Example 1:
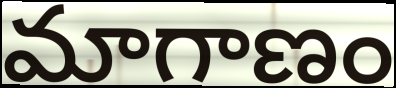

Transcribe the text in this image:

మాగాణం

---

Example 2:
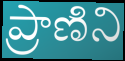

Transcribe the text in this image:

ప్రాణిని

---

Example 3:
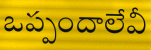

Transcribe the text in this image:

ఒప్పందాలేవీ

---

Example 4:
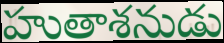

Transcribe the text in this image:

హుతాశనుడు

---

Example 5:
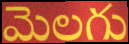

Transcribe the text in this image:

మెలగు